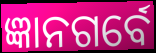
ଜ୍ଞାନଗର୍ବେ